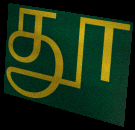
தூ